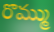
రొమ్ము